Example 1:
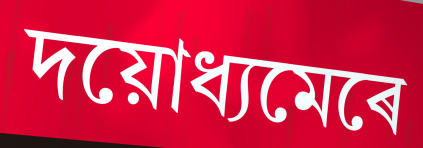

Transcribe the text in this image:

দয়োধ্যমেৰে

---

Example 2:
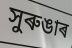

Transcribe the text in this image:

সুৰুঙাৰ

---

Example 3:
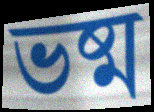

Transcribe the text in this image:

ভষ্ম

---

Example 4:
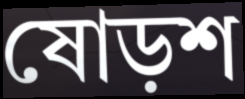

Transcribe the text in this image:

ষোড়শ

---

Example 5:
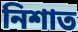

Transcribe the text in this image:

নিশাত